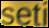
seti